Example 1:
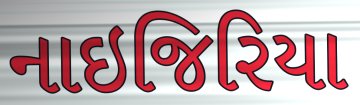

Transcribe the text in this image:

નાઇજિરિયા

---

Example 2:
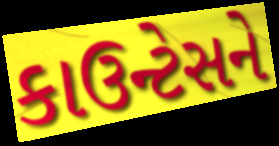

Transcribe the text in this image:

કાઉન્ટેસને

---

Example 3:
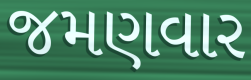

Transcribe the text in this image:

જમણવાર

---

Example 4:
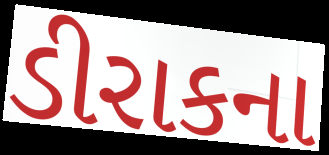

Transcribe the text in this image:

ડીરાકના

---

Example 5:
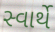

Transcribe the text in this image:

સ્વાર્થે